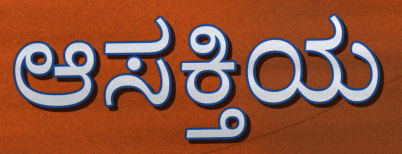
ಆಸಕ್ತಿಯ